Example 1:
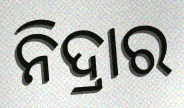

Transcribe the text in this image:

ନିଦ୍ରାର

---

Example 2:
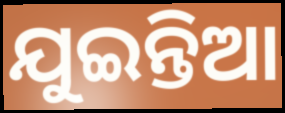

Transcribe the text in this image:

ଯୁଇନ୍ତିଆ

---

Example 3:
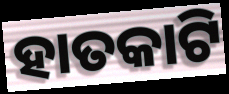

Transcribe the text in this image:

ହାତକାଟି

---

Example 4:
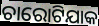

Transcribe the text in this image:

ଚାରୋଟିଯାକ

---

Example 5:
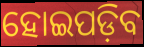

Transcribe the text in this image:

ହୋଇପଡ଼ିବ